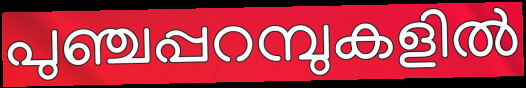
പുഞ്ചപ്പറമ്പുകളിൽ